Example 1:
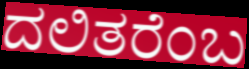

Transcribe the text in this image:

ದಲಿತರೆಂಬ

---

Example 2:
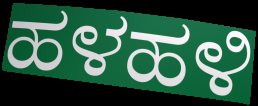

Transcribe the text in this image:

ಹಳಹಳಿ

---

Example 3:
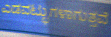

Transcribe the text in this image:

ಎಡವಟ್ಟುಗಳಾಗುತ್ತವೆ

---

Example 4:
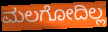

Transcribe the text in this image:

ಮಲಗೋದಿಲ್ಲ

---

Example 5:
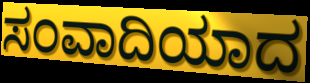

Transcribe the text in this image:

ಸಂವಾದಿಯಾದ